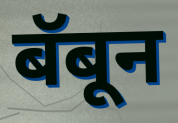
बॅबून